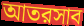
আতরসাব